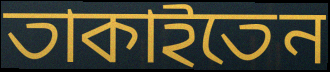
তাকাইতেন